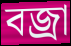
বজ্রা